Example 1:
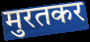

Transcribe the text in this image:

मुरतकर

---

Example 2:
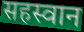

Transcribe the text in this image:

सहस्वान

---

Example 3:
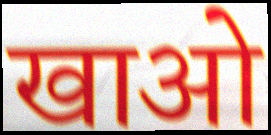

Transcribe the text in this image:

खाओ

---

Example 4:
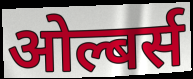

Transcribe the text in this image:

ओल्बर्स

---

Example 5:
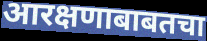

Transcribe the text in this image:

आरक्षणाबाबतचा